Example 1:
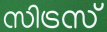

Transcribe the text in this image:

സിട്രസ്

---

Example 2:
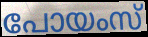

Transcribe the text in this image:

പോയംസ്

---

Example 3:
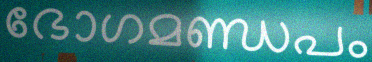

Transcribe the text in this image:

ഭോഗമണ്ഡപം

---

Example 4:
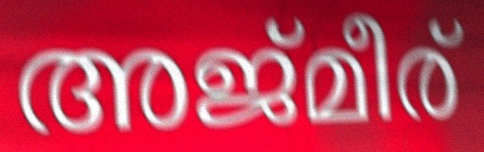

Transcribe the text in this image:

അജ്മീര്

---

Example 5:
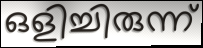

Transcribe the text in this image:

ഒളിച്ചിരുന്ന്